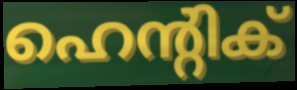
ഹെന്റിക്